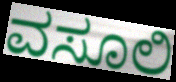
ವಸೂಲಿ